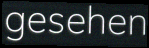
gesehen